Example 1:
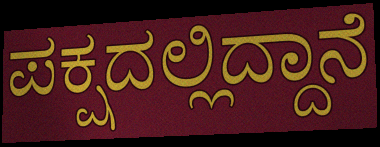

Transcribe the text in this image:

ಪಕ್ಷದಲ್ಲಿದ್ದಾನೆ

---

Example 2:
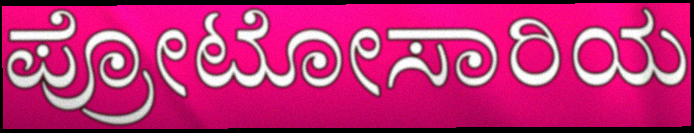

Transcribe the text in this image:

ಪ್ರೋಟೋಸಾರಿಯ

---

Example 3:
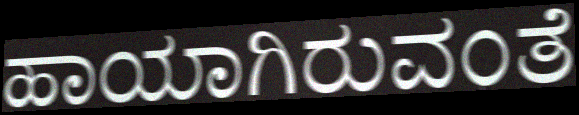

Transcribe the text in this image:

ಹಾಯಾಗಿರುವಂತೆ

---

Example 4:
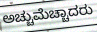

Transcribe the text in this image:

ಅಚ್ಚುಮೆಚ್ಚಾದರು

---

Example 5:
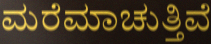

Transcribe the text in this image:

ಮರೆಮಾಚುತ್ತಿವೆ